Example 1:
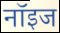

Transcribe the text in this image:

नॉइज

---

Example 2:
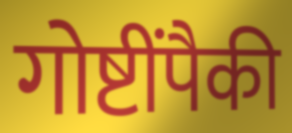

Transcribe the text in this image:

गोष्टींपैकी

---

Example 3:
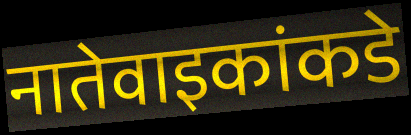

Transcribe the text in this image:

नातेवाइकांकडे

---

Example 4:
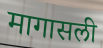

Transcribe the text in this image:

मागासली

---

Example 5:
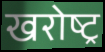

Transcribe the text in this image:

खरोष्ट्र